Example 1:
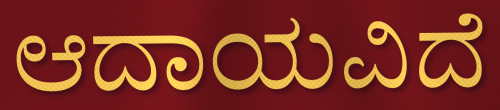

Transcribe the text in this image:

ಆದಾಯವಿದೆ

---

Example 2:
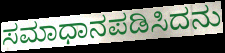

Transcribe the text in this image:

ಸಮಾಧಾನಪಡಿಸಿದನು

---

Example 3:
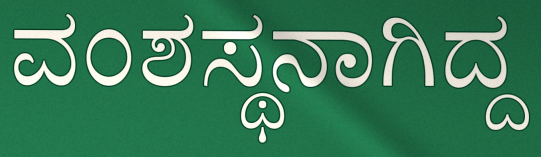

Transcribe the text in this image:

ವಂಶಸ್ಥನಾಗಿದ್ದ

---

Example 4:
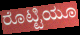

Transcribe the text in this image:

ರೊಟ್ಟಿಯೂ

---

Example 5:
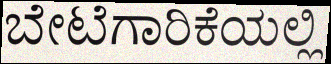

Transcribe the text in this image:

ಬೇಟೆಗಾರಿಕೆಯಲ್ಲಿ